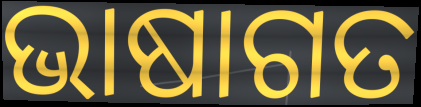
ଭାଷାଗତ